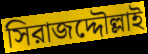
সিরাজদ্দৌল্লাই